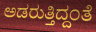
ಅಡರುತ್ತಿದ್ದಂತೆ